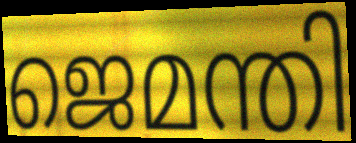
ജെമന്തി